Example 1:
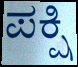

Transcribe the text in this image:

ಪಕ್ಷಿ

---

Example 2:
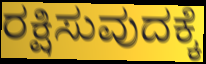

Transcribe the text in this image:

ರಕ್ಷಿಸುವುದಕ್ಕೆ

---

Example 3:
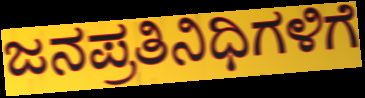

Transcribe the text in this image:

ಜನಪ್ರತಿನಿಧಿಗಳಿಗೆ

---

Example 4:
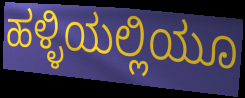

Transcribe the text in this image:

ಹಳ್ಳಿಯಲ್ಲಿಯೂ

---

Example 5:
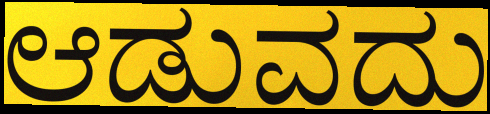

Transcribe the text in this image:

ಆಡುವದು